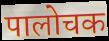
पालोचक